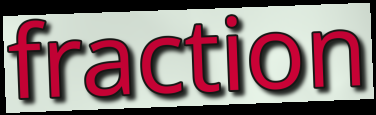
fraction